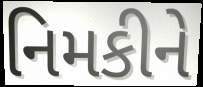
નિમકીને